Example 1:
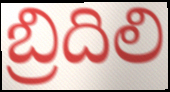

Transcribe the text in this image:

బ్రిదిలి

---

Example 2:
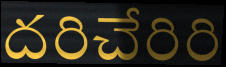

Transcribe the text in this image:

దరిచేరిరి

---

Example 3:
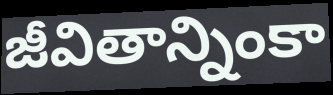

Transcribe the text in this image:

జీవితాన్నింకా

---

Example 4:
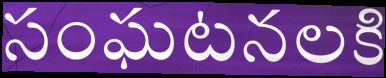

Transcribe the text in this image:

సంఘటనలకి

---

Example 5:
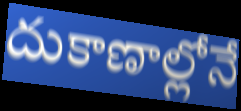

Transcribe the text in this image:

దుకాణాల్లోనే